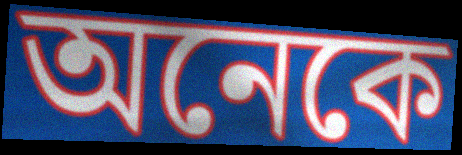
অনেকে